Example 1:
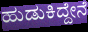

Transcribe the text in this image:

ಹುಡುಕಿದ್ದೇನೆ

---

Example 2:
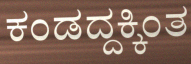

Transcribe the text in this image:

ಕಂಡದ್ದಕ್ಕಿಂತ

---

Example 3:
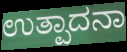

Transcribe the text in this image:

ಉತ್ಪಾದನಾ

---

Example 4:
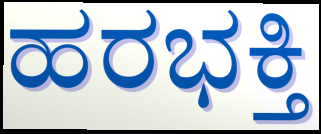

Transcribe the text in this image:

ಹರಭಕ್ತಿ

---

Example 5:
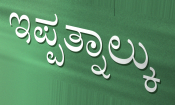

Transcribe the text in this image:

ಇಪ್ಪತ್ನಾಲ್ಕು